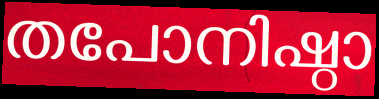
തപോനിഷ്ഠാ